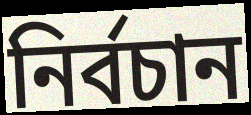
নির্বচান